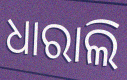
ଧାରାଲି